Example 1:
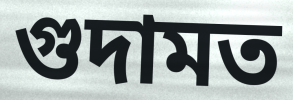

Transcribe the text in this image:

গুদামত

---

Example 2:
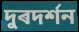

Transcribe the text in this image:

দুৰদৰ্শন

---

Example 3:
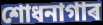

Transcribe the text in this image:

শোধনাগাৰ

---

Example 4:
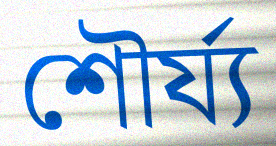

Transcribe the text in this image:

শৌৰ্য্য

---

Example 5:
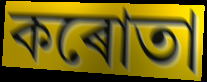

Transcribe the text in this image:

কৰোতা